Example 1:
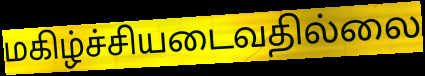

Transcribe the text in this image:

மகிழ்ச்சியடைவதில்லை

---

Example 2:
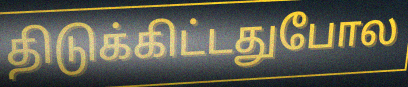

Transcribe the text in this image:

திடுக்கிட்டதுபோல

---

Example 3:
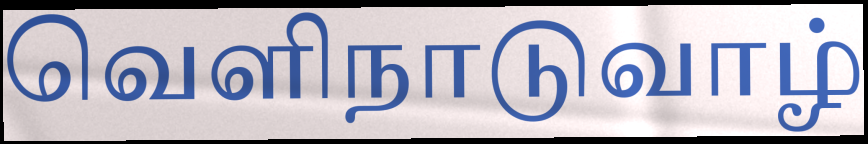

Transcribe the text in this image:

வெளிநாடுவாழ்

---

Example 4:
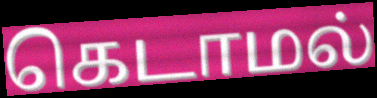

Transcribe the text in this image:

கெடாமல்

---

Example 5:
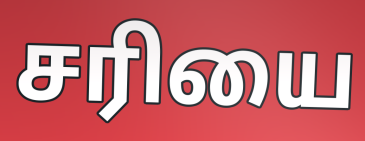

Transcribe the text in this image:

சரியை